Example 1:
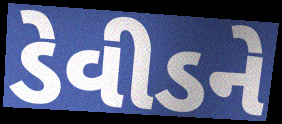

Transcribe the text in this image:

ડેવીડને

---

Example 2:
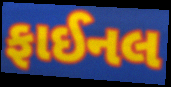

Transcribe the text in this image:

ફાઈનલ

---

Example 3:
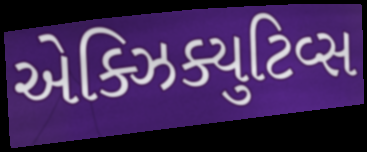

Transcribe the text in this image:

એક્ઝિક્યુટિવ્સ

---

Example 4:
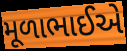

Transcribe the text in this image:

મૂળાભાઈએ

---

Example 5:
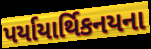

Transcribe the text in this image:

પર્યાયાર્થિકનયના